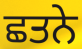
ਛਤਨੇ